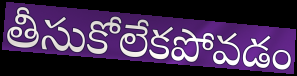
తీసుకోలేకపోవడం